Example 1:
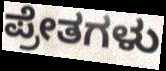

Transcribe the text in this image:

ಪ್ರೇತಗಳು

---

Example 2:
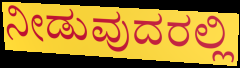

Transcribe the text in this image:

ನೀಡುವುದರಲ್ಲಿ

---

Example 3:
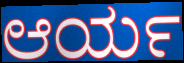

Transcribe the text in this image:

ಆರ್ಯ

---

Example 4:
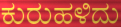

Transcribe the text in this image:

ಕುರುಹಳಿದು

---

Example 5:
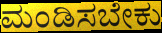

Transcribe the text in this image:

ಮಂಡಿಸಬೇಕು